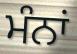
ਮੰਨਾਂ